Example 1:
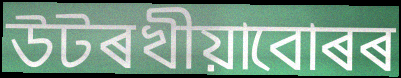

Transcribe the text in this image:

উটৰখীয়াবোৰৰ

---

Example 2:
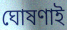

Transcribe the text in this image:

ঘোষণাই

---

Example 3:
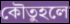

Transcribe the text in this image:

কৌতুহলে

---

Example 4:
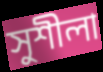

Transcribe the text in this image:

সুশীলা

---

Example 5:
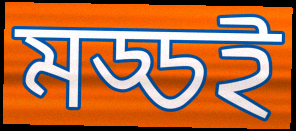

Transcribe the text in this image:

মড্ডই